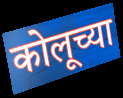
कोलूच्या